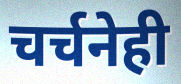
चर्चनेही